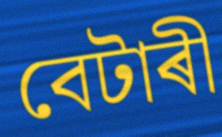
বেটাৰী